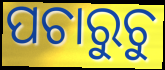
ପଚାରୁଚୁ